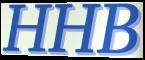
HHB